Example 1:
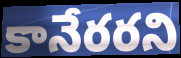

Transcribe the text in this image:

కానేరరని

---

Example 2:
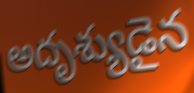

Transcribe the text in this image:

అదృశ్యుడైన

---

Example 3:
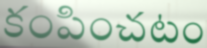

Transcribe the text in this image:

కంపించటం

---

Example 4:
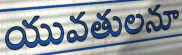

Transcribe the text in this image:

యువతులనూ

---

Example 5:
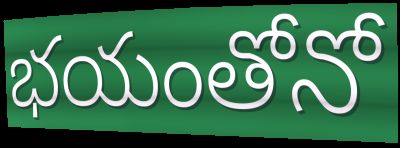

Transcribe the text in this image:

భయంతోనో